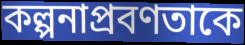
কল্পনাপ্রবণতাকে